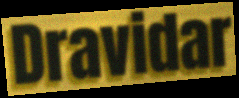
Dravidar